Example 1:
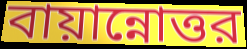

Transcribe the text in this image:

বায়ান্নোত্তর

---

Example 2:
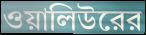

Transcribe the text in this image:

ওয়ালিউরের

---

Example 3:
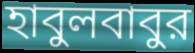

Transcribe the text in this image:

হাবুলবাবুর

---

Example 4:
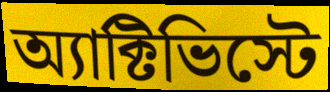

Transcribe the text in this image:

অ্যাক্টিভিস্টে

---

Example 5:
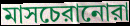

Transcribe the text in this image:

মাসচেরানোরা